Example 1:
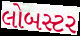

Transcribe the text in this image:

લોબસ્ટર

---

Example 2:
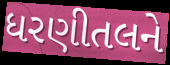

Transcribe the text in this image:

ધરણીતલને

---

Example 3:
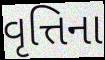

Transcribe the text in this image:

વૃત્તિના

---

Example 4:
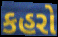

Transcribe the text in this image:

કહરો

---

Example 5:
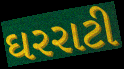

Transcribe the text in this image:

ઘરરાટી